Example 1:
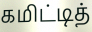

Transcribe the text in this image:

கமிட்டித்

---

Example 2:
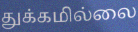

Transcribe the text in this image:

துக்கமில்லை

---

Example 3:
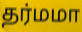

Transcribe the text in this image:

தர்மமா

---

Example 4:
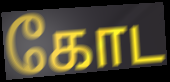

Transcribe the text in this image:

கோட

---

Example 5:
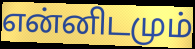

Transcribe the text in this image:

என்னிடமும்